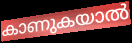
കാണുകയാൽ